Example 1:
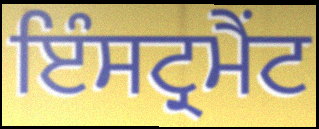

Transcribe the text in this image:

ਇੰਸਟ੍ਰਮੈਂਟ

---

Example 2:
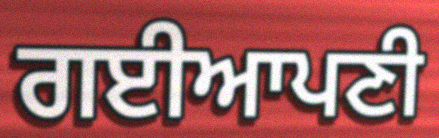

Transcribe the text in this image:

ਗਈਆਪਣੀ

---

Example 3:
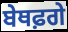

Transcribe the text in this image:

ਬੇਥਫ਼ਗੇ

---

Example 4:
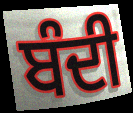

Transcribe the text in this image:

ਬੰਦੀ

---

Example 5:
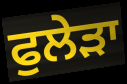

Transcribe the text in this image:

ਫੁਲੇੜਾ